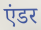
एंडर